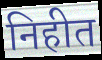
निहीत